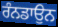
ਰੰਨਡਾਉਨ